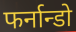
फर्नान्डो